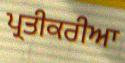
ਪ੍ਰਤੀਕਰੀਆ